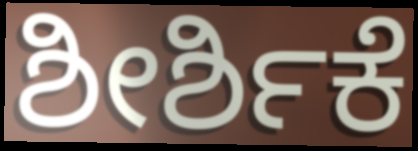
ಶೀರ್ಶಿಕೆ